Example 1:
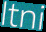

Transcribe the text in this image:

Itni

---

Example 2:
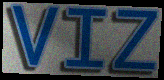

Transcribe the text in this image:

VIZ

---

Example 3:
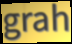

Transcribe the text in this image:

grah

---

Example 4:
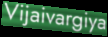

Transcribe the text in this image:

Vijaivargiya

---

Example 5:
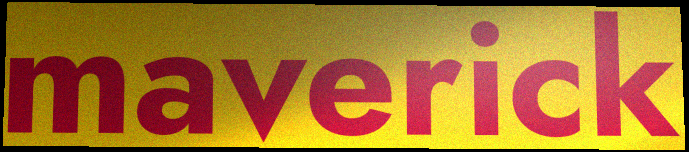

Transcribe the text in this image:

maverick